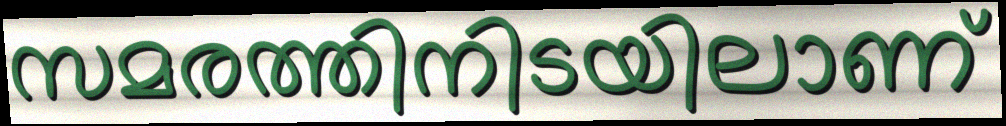
സമരത്തിനിടയിലാണ്